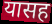
यासह